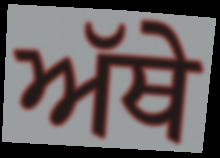
ਅੱਥੇ